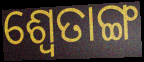
ଶ୍ୱେତାଙ୍ଗ